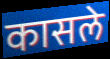
कासले